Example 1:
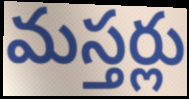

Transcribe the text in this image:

మస్తర్లు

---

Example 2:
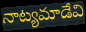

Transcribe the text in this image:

నాట్యమాడేవి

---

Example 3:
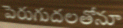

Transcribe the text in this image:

పెరుగుదలతోనూ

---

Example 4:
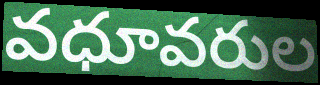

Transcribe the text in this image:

వధూవరుల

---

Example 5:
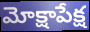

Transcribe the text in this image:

మోక్షాపేక్ష